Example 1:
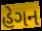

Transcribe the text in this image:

હેગન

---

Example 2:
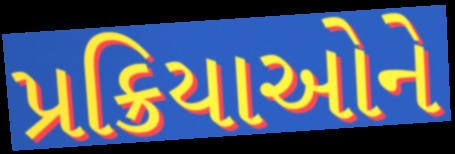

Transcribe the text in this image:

પ્રક્રિયાઓને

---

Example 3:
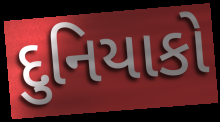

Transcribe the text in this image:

દુનિયાકો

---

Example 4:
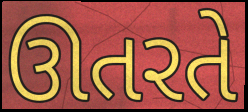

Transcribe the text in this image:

ઊતરતે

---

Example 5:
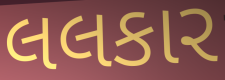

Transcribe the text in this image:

લલકાર